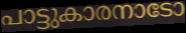
പാട്ടുകാരനാടോ